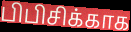
பிபிசிக்காக